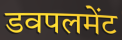
डवपलमेंट